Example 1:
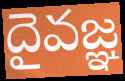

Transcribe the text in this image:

దైవజ్ఞ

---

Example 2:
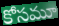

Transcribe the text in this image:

కోసమూ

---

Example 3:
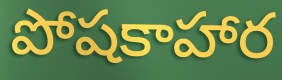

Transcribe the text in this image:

పోషకాహార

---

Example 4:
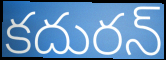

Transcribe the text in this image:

కదురన్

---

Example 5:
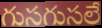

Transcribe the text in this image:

గుసగుసలే